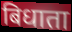
बिधाता